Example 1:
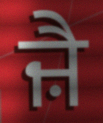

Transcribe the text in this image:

ਜ਼ੈ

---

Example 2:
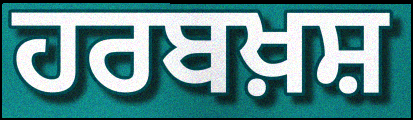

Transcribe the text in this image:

ਹਰਬਖ਼ਸ਼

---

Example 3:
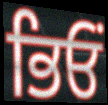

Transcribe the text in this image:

ਭਿਓਂ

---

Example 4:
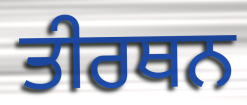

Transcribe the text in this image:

ਤੀਰਥਨ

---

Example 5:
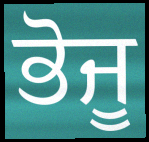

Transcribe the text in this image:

ਭੋਜੂ